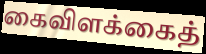
கைவிளக்கைத்